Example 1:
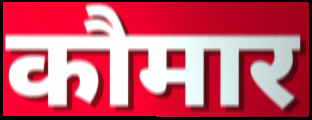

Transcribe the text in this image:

कौमार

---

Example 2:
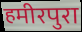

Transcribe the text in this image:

हमीरपुरा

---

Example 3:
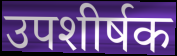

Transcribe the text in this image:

उपशीर्षक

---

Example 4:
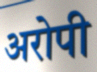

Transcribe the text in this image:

अरोपी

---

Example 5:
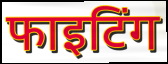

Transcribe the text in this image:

फाइटिंग